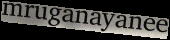
mruganayanee